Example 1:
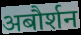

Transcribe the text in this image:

अबौर्शन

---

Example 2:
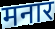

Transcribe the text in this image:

मनार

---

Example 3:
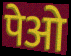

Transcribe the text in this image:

पेओ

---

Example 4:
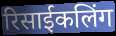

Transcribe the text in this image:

रिसाईकलिंग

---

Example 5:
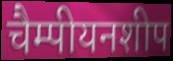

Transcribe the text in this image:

चैम्पीयनशीप